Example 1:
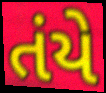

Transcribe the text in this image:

તંયે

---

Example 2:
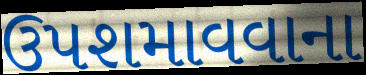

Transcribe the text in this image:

ઉપશમાવવાના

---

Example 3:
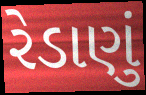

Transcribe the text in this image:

રેડાણું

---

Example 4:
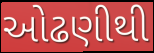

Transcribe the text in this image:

ઓઢણીથી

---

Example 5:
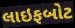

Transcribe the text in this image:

લાઇફબોટ